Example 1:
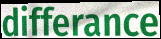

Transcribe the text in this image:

differance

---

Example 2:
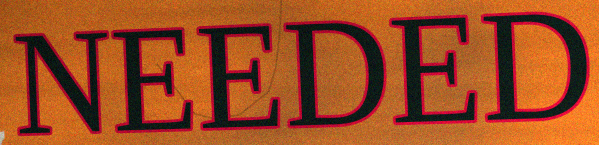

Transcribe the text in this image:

NEEDED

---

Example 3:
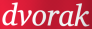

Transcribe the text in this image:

dvorak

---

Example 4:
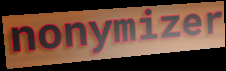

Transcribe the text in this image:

nonymizer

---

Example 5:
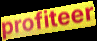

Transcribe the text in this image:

profiteer